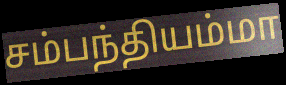
சம்பந்தியம்மா